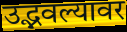
उद्भवल्यावर